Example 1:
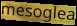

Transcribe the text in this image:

mesoglea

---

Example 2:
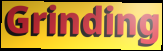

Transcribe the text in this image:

Grinding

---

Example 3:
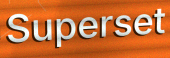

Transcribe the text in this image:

Superset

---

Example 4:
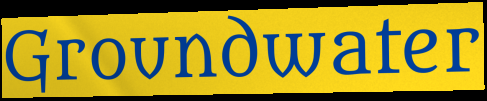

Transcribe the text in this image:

Groundwater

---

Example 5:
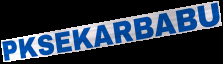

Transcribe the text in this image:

PKSEKARBABU